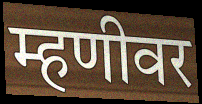
म्हणीवर